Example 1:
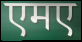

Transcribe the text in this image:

एमए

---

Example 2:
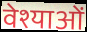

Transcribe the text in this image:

वेश्याओं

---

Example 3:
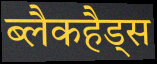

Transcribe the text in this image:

ब्लैकहैड्स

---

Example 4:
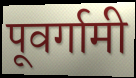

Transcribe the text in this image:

पूवर्गामी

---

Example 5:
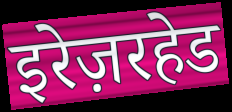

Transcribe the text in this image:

इरेज़रहेड